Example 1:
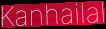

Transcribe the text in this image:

Kanhailal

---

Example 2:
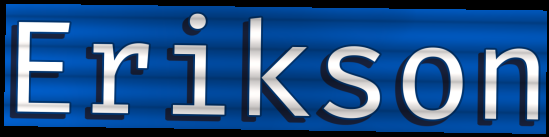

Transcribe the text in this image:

Erikson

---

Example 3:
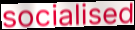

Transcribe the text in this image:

socialised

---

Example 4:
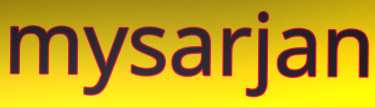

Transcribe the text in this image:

mysarjan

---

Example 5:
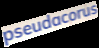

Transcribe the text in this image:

pseudacorus